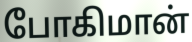
போகிமான்